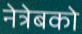
नेत्रेबको